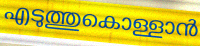
എടുത്തുകൊള്ളാൻ